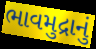
ભાવમુદ્રાનું